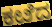
ಕೞಿದ